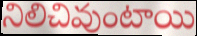
నిలిచివుంటాయి